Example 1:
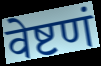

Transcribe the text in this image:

वेष्टणं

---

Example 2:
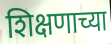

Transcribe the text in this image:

शिक्षणाच्या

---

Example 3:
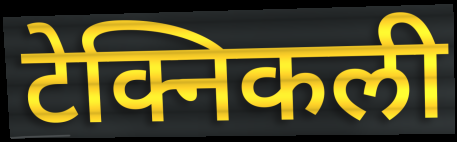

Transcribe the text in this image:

टेक्निकली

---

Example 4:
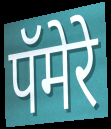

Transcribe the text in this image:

पॅमेरे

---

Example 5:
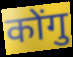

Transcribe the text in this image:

कोंगु